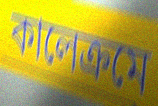
কালেক্রমে